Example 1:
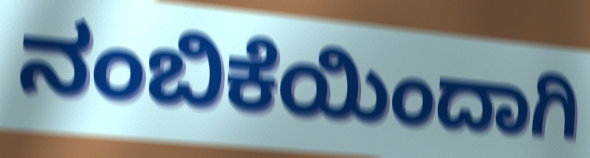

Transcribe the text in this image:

ನಂಬಿಕೆಯಿಂದಾಗಿ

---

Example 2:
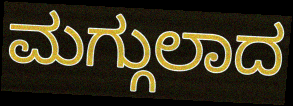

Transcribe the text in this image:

ಮಗ್ಗುಲಾದ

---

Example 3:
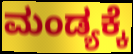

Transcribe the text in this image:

ಮಂಡ್ಯಕ್ಕೆ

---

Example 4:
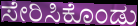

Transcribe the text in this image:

ಸೇರಿಸಿಕೊಂಡು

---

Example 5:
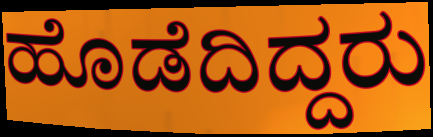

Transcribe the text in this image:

ಹೊಡೆದಿದ್ದರು